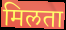
मिलता